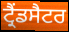
ਟ੍ਰੈਂਡਸੈਟਰ